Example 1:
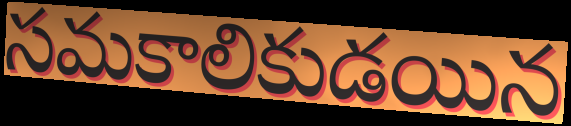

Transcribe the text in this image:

సమకాలికుడయిన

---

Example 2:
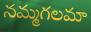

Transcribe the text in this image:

నమ్మగలమా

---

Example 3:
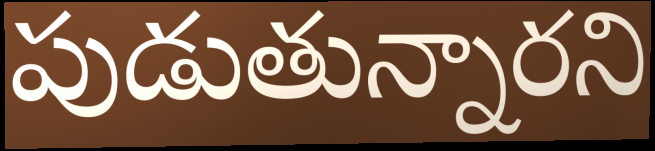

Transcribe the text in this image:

పుడుతున్నారని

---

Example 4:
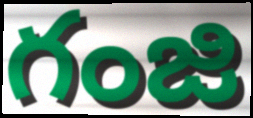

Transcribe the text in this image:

గంజి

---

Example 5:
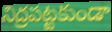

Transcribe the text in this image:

నిద్రపట్టకుండా